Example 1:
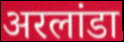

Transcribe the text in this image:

अरलांडा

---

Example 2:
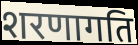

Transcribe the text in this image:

शरणागति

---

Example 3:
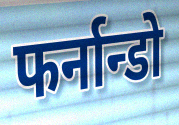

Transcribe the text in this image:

फर्नान्डो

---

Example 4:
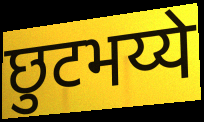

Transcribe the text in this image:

छुटभय्ये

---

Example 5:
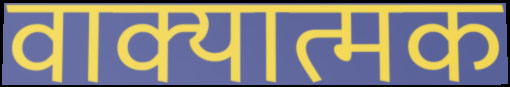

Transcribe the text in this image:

वाक्यात्मक